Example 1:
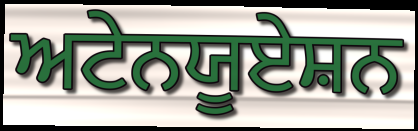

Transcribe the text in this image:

ਅਟੇਨਯੂਏਸ਼ਨ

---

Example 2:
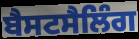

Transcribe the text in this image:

ਬੈਸਟਸੈਲਿੰਗ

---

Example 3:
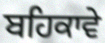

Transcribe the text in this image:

ਬਹਿਕਾਵੇ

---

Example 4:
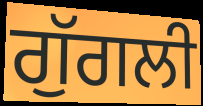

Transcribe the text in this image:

ਗੁੱਗਲੀ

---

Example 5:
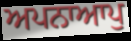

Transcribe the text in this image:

ਅਪਨਾਆਪੁ